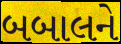
બબાલને